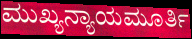
ಮುಖ್ಯನ್ಯಾಯಮೂರ್ತಿ